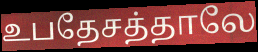
உபதேசத்தாலே